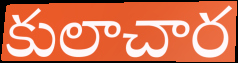
కులాచార